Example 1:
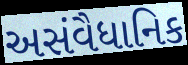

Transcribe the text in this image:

અસંવૈધાનિક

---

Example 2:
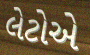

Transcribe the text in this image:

લેટોએ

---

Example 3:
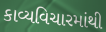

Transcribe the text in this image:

કાવ્યવિચારમાંથી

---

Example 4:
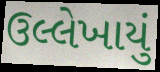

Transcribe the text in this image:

ઉલ્લેખાયું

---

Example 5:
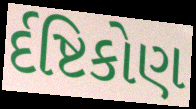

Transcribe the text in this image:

ર્દષ્ટિકોણ